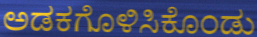
ಅಡಕಗೊಳಿಸಿಕೊಂಡು